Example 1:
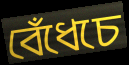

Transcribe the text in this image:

বেঁধেচে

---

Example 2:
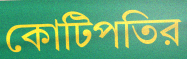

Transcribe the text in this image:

কোটিপতির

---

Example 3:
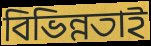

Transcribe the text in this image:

বিভিন্নতাই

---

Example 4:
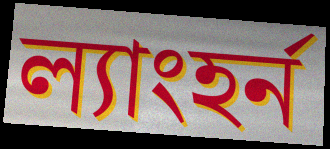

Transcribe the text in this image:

ল্যাংহর্ন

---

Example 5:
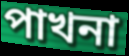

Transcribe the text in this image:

পাখনা